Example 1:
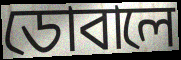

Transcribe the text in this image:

ডোবালে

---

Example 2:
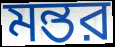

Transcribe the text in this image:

মন্তর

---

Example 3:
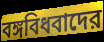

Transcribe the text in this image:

বঙ্গবিধবাদের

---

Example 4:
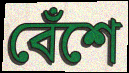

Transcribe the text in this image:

বেঁশে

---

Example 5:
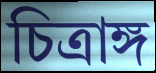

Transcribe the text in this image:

চিত্রাঙ্গ